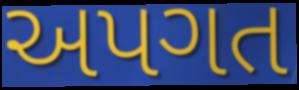
અપગત